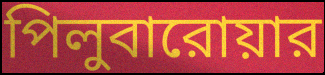
পিলুবারোয়ার